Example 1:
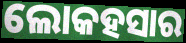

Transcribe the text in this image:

ଲୋକହସାର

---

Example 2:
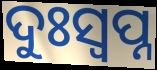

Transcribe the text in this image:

ଦୁଃସ୍ଵପ୍ନ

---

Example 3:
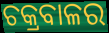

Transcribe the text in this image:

ଚକ୍ରବାଳର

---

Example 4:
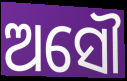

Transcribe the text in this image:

ଅସୌ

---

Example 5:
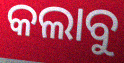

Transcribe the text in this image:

କଲାବୁ